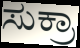
ಸುಕ್ರಾ